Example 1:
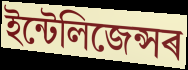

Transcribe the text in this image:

ইন্টেলিজেন্সৰ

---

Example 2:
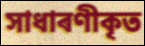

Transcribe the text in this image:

সাধাৰণীকৃত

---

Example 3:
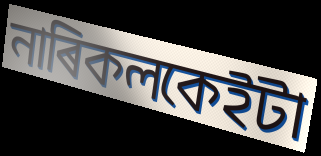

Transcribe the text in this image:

নাৰিকলকেইটা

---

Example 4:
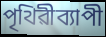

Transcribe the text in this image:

পৃথিৱীব্যাপী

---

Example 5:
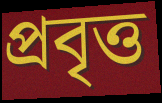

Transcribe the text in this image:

প্ৰবৃত্ত